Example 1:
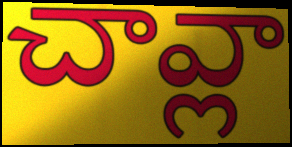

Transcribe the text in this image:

చావ్లా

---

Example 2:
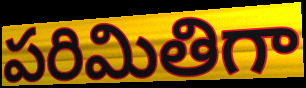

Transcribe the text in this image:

పరిమితిగా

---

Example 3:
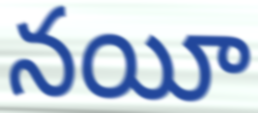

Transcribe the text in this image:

నయీ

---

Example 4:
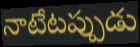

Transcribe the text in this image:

నాటేటప్పుడు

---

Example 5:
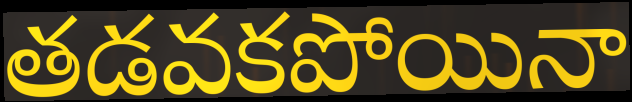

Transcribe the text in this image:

తడవకపోయినా